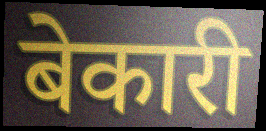
बेकारी